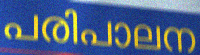
പരിപാലന